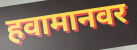
हवामानवर